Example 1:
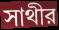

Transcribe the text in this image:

সাথীর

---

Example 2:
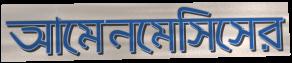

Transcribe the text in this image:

আমেনমেসিসের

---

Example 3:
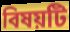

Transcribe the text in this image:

বিষয়টি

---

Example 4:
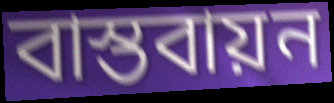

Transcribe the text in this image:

বাস্তবায়ন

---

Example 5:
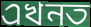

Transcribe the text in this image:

এখনত